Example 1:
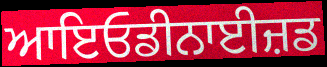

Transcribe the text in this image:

ਆਇਓਡੀਨਾਈਜ਼ਡ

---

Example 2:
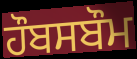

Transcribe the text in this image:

ਹੌਬਸਬੌਮ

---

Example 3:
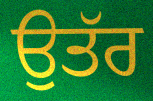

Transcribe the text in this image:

ਉਤੱਰ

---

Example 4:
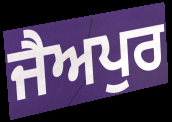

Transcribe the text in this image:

ਜੈਅਪੁਰ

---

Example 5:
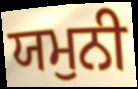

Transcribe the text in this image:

ਯਮੁਨੀ